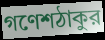
গণেশঠাকুর